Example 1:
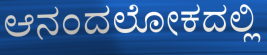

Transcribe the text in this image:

ಆನಂದಲೋಕದಲ್ಲಿ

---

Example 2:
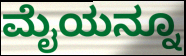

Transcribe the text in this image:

ಮೈಯನ್ನೂ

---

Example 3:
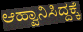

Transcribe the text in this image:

ಆಹ್ವಾನಿಸಿದ್ದಕ್ಕೆ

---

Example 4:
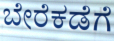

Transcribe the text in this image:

ಬೇರೆಕಡೆಗೆ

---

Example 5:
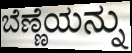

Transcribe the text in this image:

ಬೆಣ್ಣೆಯನ್ನು